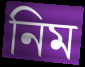
নিম